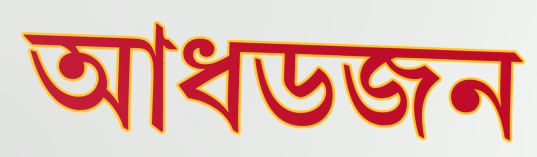
আধডজন